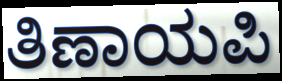
ತಿಣಾಯಪಿ